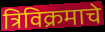
त्रिविक्रमाचे